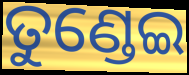
ତୁଣ୍ଡେଇ